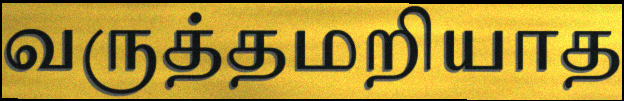
வருத்தமறியாத